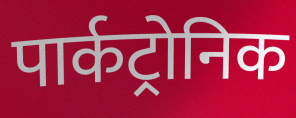
पार्कट्रोनिक